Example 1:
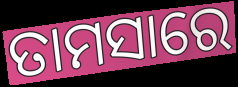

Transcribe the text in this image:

ତାମସାରେ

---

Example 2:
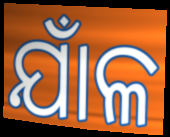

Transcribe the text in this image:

ଯାଁଳ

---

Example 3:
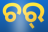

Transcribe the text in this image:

ଚର୍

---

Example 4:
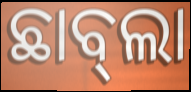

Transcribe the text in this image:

ଛାବ୍‍ଲା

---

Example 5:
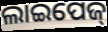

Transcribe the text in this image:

ଲାଇପେଜ୍